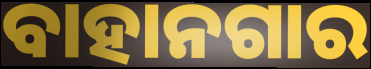
ବାହାନଗାର